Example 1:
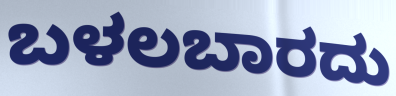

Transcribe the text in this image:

ಬಳಲಬಾರದು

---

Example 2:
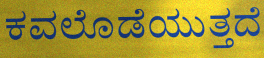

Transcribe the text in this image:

ಕವಲೊಡೆಯುತ್ತದೆ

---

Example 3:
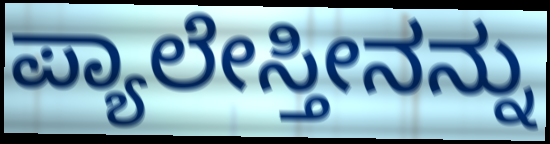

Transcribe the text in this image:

ಪ್ಯಾಲೇಸ್ತೀನನ್ನು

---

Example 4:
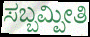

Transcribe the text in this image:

ಸಬ್ಬಮ್ಪೀತಿ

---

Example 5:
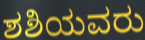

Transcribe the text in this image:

ಶಶಿಯವರು